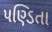
પણ્ડિતા